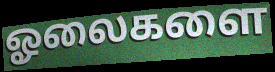
ஓலைகளை